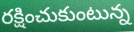
రక్షించుకుంటున్న